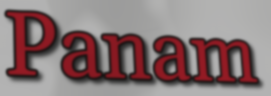
Panam